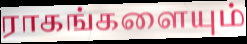
ராகங்களையும்